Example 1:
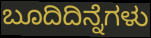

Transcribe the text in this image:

ಬೂದಿದಿನ್ನೆಗಳು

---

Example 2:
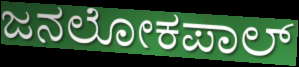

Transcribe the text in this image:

ಜನಲೋಕಪಾಲ್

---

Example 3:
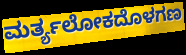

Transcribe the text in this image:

ಮರ್ತ್ಯಲೋಕದೊಳಗಣ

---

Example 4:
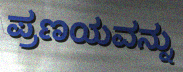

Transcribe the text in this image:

ಪ್ರಣಯವನ್ನು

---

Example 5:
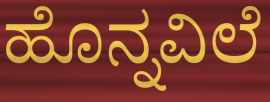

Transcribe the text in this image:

ಹೊನ್ನವಿಲೆ